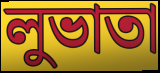
লুভাতা